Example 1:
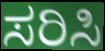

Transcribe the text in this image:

ಸರಿಸಿ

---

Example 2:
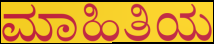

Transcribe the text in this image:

ಮಾಹಿತಿಯ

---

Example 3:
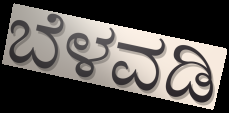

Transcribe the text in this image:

ಬೆಳವಡಿ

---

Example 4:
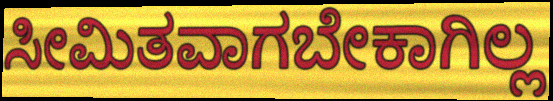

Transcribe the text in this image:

ಸೀಮಿತವಾಗಬೇಕಾಗಿಲ್ಲ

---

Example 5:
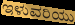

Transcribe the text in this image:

ಇಳುವರಿಯು